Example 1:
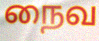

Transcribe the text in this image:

நைவ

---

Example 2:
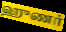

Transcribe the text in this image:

ஹுணர்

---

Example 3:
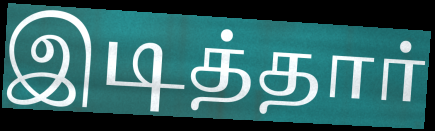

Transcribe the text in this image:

இடித்தார்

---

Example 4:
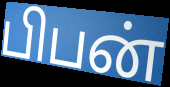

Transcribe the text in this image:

பிபன்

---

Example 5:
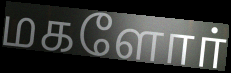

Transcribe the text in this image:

மகளோர்